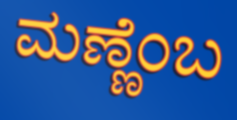
ಮಣ್ಣೆಂಬ